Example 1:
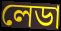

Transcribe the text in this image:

লেডা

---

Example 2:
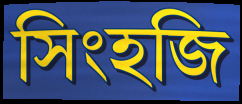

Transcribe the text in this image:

সিংহজি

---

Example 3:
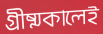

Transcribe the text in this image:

গ্রীষ্মকালেই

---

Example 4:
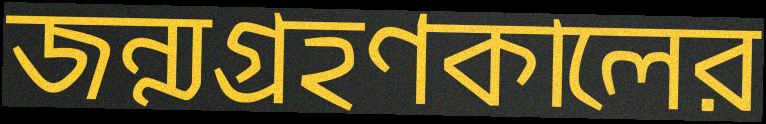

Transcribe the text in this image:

জন্মগ্রহণকালের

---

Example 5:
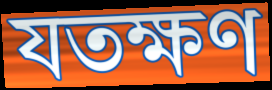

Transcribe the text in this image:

যতক্ষণ